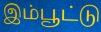
இம்பூட்டு